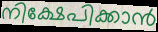
നിക്ഷേപിക്കാൻ